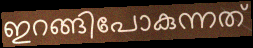
ഇറങ്ങിപോകുന്നത്